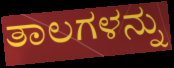
ತಾಲಗಳನ್ನು